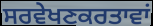
ਸਰਵੇਖਣਕਰਤਾਵਾਂ